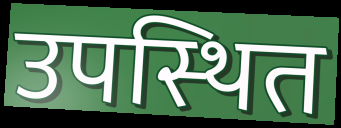
उपस्थित